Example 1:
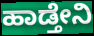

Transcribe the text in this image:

ಹಾಡ್ತೇನಿ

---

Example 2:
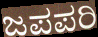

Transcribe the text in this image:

ಜಪಪರಿ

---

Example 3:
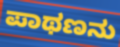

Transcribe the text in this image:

ಪಾಥಣನು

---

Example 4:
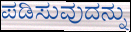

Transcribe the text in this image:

ಪಡಿಸುವುದನ್ನು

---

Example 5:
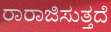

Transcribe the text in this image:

ರಾರಾಜಿಸುತ್ತದೆ